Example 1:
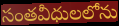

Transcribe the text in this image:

సంతవీధులలోను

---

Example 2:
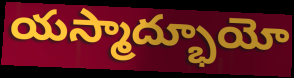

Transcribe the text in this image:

యస్మాద్భూయో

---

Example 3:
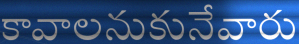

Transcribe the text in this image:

కావాలనుకునేవారు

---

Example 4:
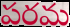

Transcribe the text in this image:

పరమ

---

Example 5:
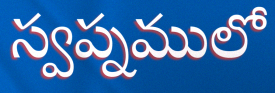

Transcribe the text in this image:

స్వప్నములో